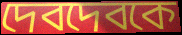
দেবদেবকে